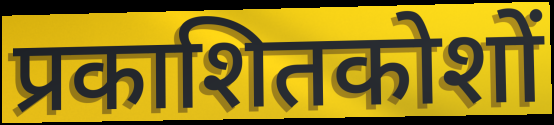
प्रकाशितकोशों